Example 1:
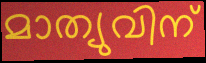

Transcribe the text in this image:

മാത്യുവിന്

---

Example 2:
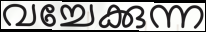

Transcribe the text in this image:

വച്ചേക്കുന്ന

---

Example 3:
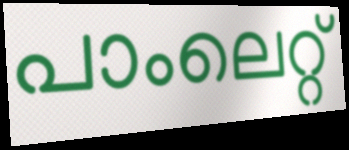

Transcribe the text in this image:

പാംലെറ്റ്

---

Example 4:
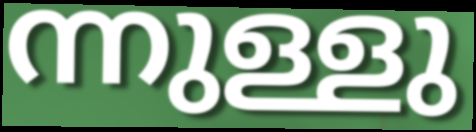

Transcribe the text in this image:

ന്നുള്ളു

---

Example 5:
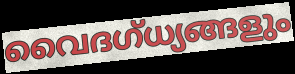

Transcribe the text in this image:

വൈദഗ്ധ്യങ്ങളും